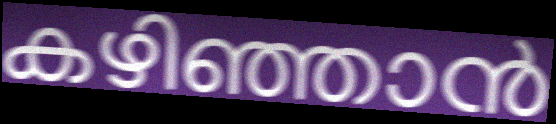
കഴിഞ്ഞാൻ